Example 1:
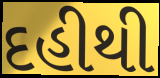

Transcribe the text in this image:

દહીથી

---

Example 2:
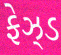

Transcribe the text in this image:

ફેઝ્ડ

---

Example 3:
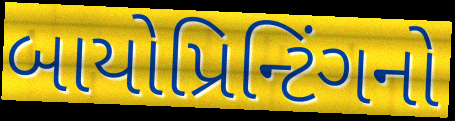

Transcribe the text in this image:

બાયોપ્રિન્ટિંગનો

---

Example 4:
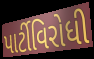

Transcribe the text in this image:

પાર્ટીવિરોધી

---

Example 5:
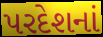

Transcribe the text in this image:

પરદેશનાં